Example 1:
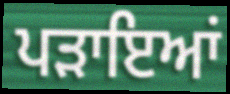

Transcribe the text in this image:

ਪੜਾਇਆਂ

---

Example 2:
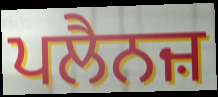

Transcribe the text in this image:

ਪਲੈਨਜ਼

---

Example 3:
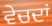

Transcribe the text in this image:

ਵੇਚਦਾਂ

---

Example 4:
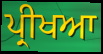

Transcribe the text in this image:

ਪ੍ਰੀਖਆ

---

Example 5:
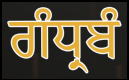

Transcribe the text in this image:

ਗੰਧ੍ਰਬੰ